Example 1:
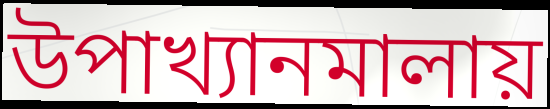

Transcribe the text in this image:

উপাখ্যানমালায়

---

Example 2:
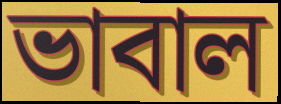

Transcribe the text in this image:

ভাবাল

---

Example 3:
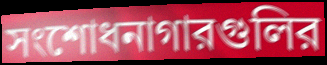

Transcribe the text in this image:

সংশোধনাগারগুলির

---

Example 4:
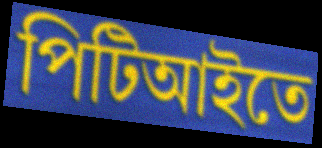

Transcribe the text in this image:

পিটিআইতে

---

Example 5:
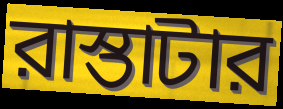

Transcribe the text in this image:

রাস্তাটার